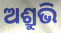
ଅଶ୍ରୁଭି